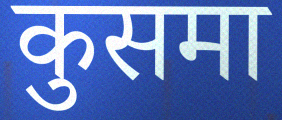
कुसमा